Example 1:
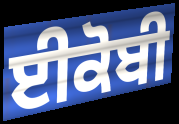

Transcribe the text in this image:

ਈਕੋਬੀ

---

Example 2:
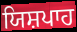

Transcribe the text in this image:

ਯਿਸ਼ਪਾਹ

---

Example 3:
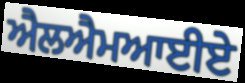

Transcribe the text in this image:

ਐਲਐਮਆਈਏ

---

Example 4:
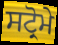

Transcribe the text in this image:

ਸਟ੍ਰੋਮੇ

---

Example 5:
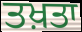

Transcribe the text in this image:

ਤਖ਼ਤਾ